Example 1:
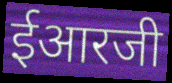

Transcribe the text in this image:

ईआरजी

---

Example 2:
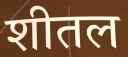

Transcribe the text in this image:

शीतल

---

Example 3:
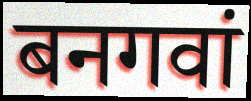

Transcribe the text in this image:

बनगवां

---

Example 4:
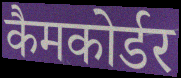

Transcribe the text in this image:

कैमकोर्डर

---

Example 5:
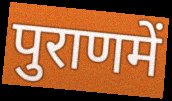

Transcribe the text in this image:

पुराणमें